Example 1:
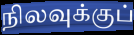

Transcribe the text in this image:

நிலவுக்குப்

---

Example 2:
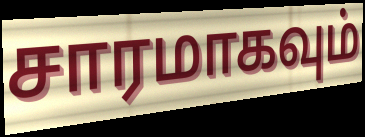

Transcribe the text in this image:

சாரமாகவும்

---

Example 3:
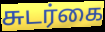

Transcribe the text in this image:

சுடர்கை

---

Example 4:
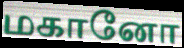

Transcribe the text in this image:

மகானோ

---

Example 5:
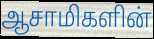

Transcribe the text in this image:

ஆசாமிகளின்